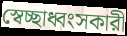
স্বেচ্ছাধ্বংসকারী